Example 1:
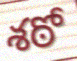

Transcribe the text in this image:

శఠో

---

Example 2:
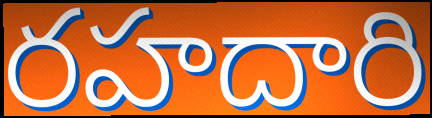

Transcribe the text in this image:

రహదారి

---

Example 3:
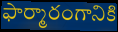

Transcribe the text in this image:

ఫార్మారంగానికి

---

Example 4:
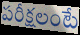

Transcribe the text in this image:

పరీక్షలంటే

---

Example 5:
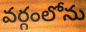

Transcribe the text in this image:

వర్గంలోను